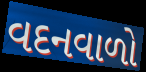
વદનવાળો